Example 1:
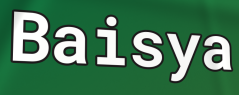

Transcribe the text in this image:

Baisya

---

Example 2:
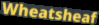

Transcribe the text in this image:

Wheatsheaf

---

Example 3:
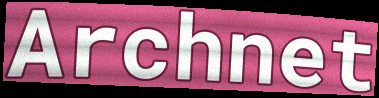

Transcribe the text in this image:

Archnet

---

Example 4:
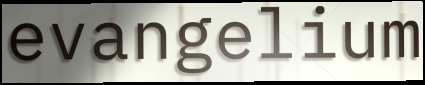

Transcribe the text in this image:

evangelium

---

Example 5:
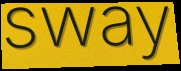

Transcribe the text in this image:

sway